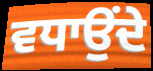
ਵਧਾਉਂਦੇ